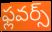
ఫ్లవర్స్